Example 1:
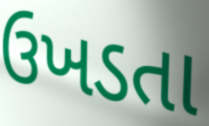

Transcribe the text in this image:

ઉખડતા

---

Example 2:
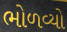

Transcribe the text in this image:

ભોળવ્યો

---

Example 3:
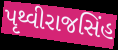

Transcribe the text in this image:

પૃથ્વીરાજસિંહ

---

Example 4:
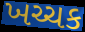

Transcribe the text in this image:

ખચ્ચક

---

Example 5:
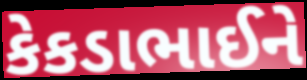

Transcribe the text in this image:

કેકડાભાઈને